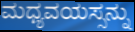
ಮಧ್ಯವಯಸ್ಸನ್ನು